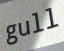
gull